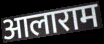
आलाराम